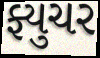
ફ્યુચર